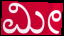
ಮೀ